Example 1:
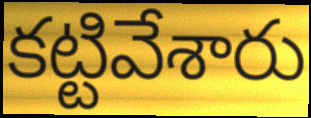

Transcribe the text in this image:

కట్టివేశారు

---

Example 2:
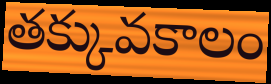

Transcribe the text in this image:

తక్కువకాలం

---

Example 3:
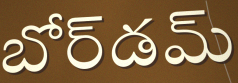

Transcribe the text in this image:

బోర్‌డమ్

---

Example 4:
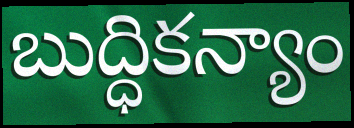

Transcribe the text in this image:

బుద్ధికన్యాం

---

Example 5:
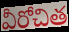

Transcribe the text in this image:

వీరోచిత